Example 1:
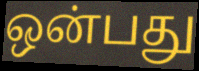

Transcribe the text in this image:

ஒன்பது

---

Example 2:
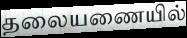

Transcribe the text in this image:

தலையணையில்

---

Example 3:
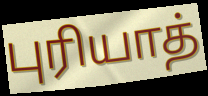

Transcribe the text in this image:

புரியாத்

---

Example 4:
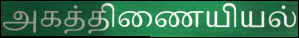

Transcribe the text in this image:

அகத்திணையியல்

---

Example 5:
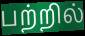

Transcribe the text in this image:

பற்றில்